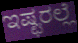
ಇಷ್ಟರಲ್ಲೆ